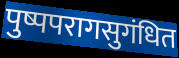
पुष्पपरागसुगंधित